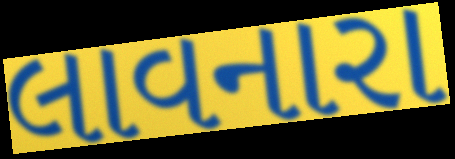
લાવનારા